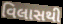
વિલાસથી